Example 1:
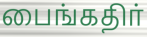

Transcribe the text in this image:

பைங்கதிர்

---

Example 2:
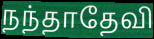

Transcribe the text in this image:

நந்தாதேவி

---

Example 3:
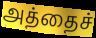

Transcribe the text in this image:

அத்தைச்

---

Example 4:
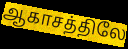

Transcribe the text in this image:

ஆகாசத்திலே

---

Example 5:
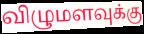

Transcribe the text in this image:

விழுமளவுக்கு